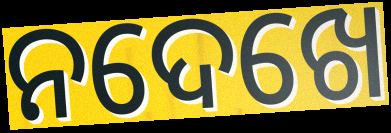
ନଦେଖେ